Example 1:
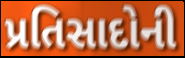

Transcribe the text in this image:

પ્રતિસાદોની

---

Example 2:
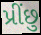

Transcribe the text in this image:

પ્રીંછુ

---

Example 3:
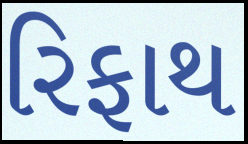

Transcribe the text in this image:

રિફાથ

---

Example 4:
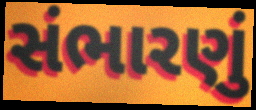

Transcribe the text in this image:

સંભારણું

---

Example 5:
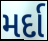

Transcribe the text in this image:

મર્દા